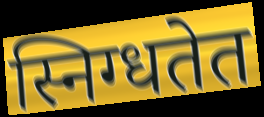
स्निग्धतेत